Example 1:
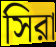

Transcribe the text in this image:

সিরা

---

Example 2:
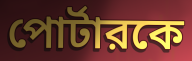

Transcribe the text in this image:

পোর্টারকে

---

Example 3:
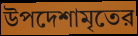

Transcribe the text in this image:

উপদেশামৃতের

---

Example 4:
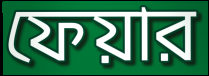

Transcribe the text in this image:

ফেয়ার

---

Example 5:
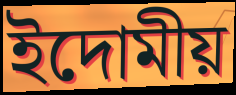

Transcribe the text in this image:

ইদোমীয়